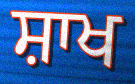
ਸ਼ਾਖ